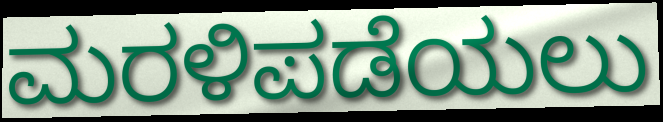
ಮರಳಿಪಡೆಯಲು